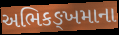
અભિકઙ્ખમાના